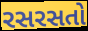
રસરસતો